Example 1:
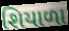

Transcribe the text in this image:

શિયાળા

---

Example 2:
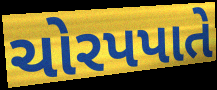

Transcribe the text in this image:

ચોરપપાતે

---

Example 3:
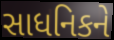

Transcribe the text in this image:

સાધનિકને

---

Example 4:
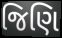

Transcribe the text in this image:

જિણિ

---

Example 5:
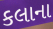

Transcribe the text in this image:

કલાના